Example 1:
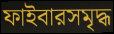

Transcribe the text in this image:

ফাইবারসমৃদ্ধ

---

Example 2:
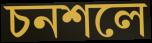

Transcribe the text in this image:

চনশলে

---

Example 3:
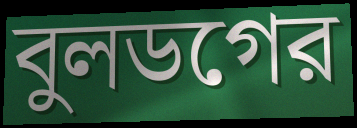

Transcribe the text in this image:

বুলডগের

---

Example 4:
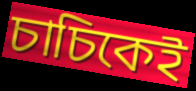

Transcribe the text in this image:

চাচিকেই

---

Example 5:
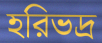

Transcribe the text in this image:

হরিভদ্র